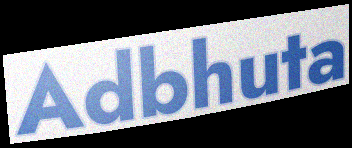
Adbhuta